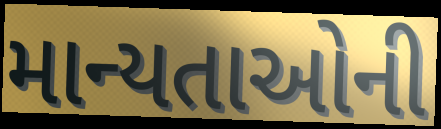
માન્યતાઓની